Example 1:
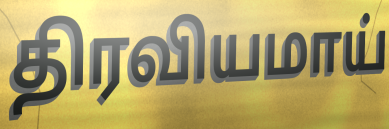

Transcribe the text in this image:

திரவியமாய்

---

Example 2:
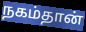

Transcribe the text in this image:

நகம்தான்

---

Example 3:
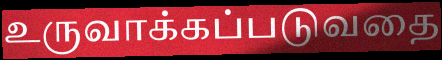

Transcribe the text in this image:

உருவாக்கப்படுவதை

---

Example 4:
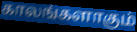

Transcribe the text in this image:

காலங்களாகும்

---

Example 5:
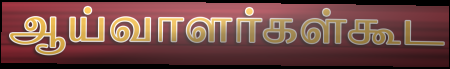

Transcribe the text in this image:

ஆய்வாளர்கள்கூட